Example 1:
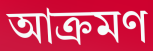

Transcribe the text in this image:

আক্ৰমণ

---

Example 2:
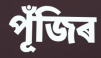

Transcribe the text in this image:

পূঁজিৰ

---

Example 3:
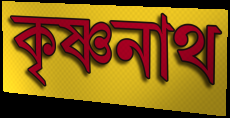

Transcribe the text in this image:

কৃষ্ণনাথ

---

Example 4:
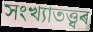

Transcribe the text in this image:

সংখ্যাতত্ত্বৰ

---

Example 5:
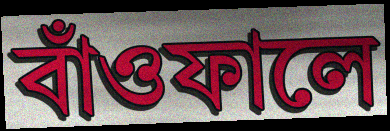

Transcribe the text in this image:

বাঁওফালে